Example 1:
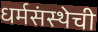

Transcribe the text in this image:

धर्मसंस्थेची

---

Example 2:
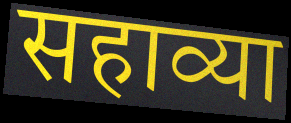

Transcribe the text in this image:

सहाव्या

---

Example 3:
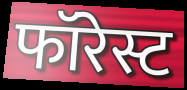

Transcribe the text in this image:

फॉरेस्ट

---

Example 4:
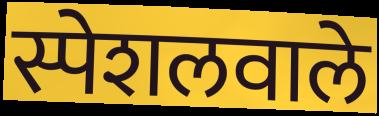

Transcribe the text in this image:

स्पेशलवाले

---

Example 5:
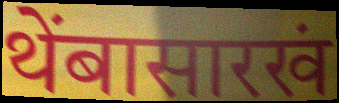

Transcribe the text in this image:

थेंबासारखं